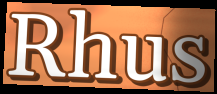
Rhus